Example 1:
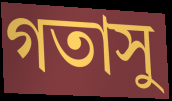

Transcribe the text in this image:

গতাসু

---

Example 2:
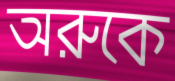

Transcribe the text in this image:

অরুকে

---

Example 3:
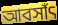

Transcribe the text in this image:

আবসাঁৎ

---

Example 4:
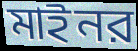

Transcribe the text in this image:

মাইনর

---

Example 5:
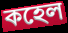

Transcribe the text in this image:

কহেল